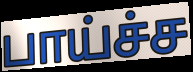
பாய்ச்ச